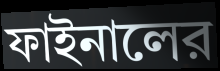
ফাইনালের